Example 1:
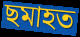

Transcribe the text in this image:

ছমাহত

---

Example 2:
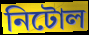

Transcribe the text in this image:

নিটোল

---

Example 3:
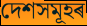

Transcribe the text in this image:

দেশসমূহৰ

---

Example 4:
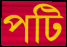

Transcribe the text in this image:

পটি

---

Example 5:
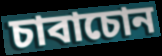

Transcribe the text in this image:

চাবাচোন